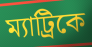
ম্যাট্রিকে